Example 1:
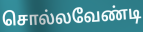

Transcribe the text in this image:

சொல்லவேண்டி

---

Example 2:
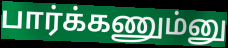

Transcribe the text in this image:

பார்க்கணும்னு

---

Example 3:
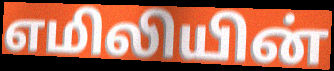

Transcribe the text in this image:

எமிலியின்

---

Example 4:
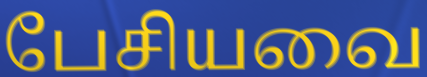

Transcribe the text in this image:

பேசியவை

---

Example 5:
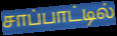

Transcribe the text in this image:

சாப்பாட்டில்